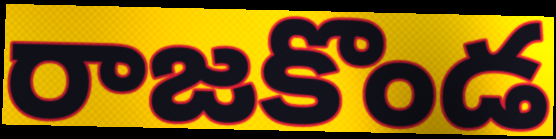
రాజకొండ